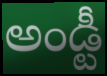
అండ్టీ